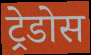
ट्रेडोस